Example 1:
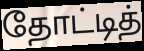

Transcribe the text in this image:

தோட்டித்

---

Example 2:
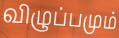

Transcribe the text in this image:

விழுப்பமும்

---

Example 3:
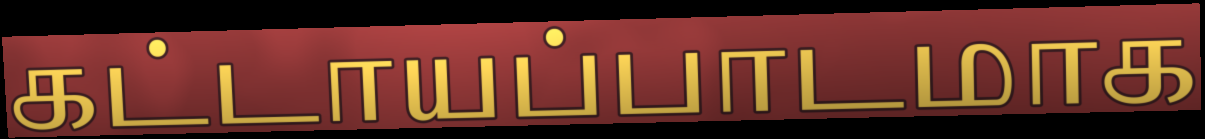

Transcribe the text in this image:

கட்டாயப்பாடமாக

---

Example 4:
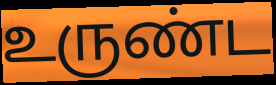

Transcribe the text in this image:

உருண்ட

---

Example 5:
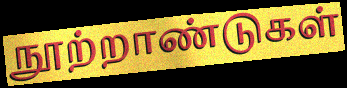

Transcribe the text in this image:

நூற்றாண்டுகள்